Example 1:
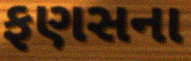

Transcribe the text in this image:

ફણસના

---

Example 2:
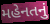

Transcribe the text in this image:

મહેનતનું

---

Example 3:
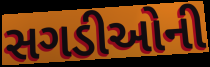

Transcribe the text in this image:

સગડીઓની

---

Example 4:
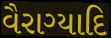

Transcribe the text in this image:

વૈરાગ્યાદિ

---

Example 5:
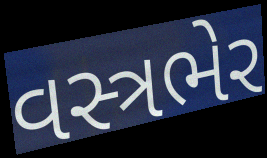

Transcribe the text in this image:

વસ્ત્રભેર